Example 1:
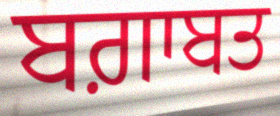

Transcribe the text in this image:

ਬਗ਼ਾਬਤ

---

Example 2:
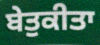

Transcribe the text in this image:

ਬੇਤੁਕੀਤਾ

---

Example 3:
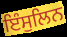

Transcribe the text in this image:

ਇੰਸੁਲਿਨ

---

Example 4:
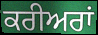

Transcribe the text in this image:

ਕਰੀਅਰਾਂ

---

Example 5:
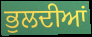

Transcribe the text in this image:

ਭੁਲਦੀਆਂ